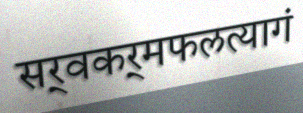
सर्वकर्मफलत्यागं